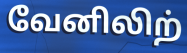
வேனிலிற்